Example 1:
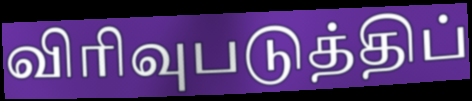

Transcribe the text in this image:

விரிவுபடுத்திப்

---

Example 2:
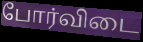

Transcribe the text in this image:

போர்விடை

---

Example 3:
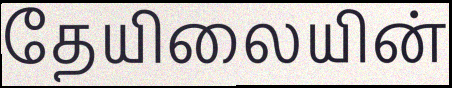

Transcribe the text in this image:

தேயிலையின்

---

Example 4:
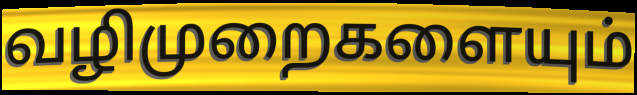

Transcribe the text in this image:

வழிமுறைகளையும்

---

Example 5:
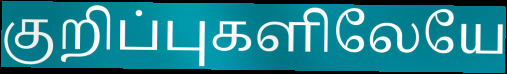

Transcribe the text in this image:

குறிப்புகளிலேயே